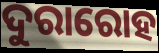
ଦୁରାରୋହ